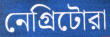
নেগ্রিটোরা